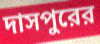
দাসপুরের